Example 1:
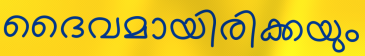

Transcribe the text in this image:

ദൈവമായിരിക്കയും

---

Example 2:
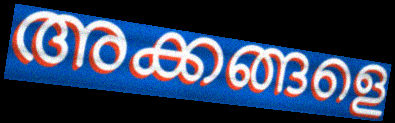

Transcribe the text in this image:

അക്കങ്ങളെ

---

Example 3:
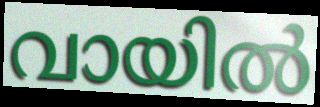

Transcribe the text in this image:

വായിൽ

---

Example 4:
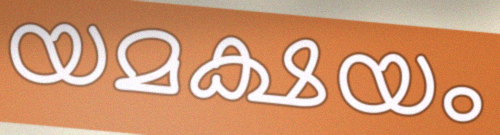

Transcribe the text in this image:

യമക്ഷയം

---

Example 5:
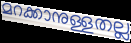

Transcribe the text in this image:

മറക്കാനുള്ളതല്ല